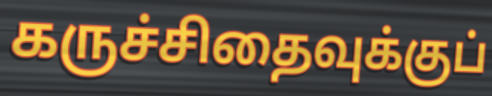
கருச்சிதைவுக்குப்